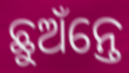
ଛୁଅଁନ୍ତେ